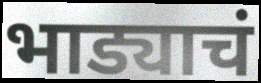
भाड्याचं